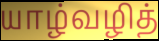
யாழ்வழித்